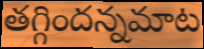
తగ్గిందన్నమాట